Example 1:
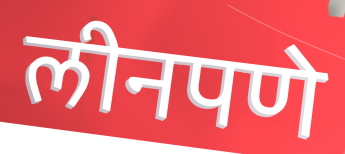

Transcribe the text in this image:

लीनपणे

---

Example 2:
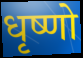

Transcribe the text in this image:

धृष्णो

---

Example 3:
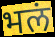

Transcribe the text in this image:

भलं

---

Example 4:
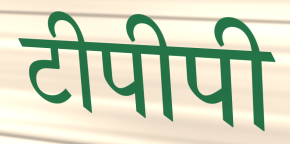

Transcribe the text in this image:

टीपीपी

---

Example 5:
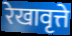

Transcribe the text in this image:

रेखावृत्ते